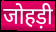
जोहड़ी